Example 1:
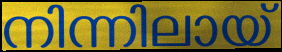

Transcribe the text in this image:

നിന്നിലായ്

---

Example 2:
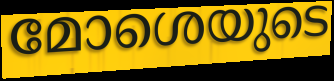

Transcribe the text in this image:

മോശെയുടെ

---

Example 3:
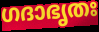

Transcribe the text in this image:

ഗദാഭൃതഃ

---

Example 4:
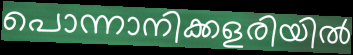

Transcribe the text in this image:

പൊന്നാനിക്കളരിയിൽ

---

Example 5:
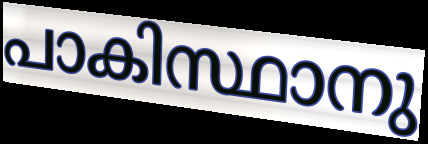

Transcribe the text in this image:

പാകിസ്ഥാനു